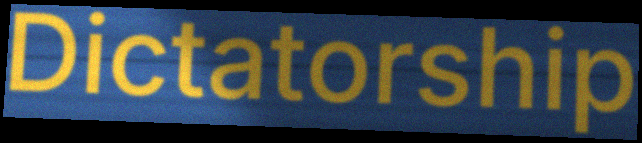
Dictatorship